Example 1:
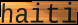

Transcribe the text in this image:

haiti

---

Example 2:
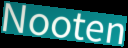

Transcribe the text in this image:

Nooten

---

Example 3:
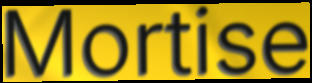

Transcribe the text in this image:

Mortise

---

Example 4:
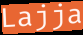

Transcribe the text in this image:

Lajja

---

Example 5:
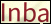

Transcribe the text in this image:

Inba